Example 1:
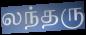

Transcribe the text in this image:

லந்தரு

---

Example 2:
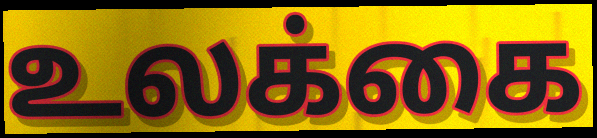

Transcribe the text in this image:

உலக்கை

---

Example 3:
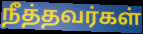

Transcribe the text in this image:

நீத்தவர்கள்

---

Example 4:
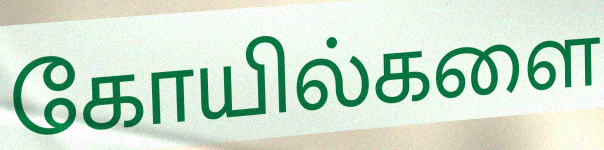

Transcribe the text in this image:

கோயில்களை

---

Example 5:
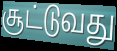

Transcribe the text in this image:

சூட்டுவது